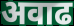
अवाढ